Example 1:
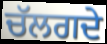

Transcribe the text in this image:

ਚੱਲਗਦੇ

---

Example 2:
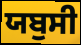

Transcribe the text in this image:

ਯਬੁਸੀ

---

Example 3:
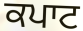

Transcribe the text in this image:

ਕਪਾਟ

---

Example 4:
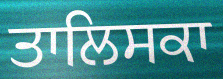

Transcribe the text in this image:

ਤਾਲਿਸਕਾ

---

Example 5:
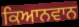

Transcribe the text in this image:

ਕਿਆਨਵਾਨ